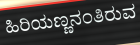
ಹಿರಿಯಣ್ಣನಂತಿರುವ